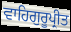
ਵਾਹਿਗੁਰੂਪ੍ਰੀਤ